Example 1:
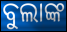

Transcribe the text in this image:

ବୁଲାଙ୍କ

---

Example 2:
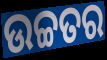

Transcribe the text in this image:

ଉଚ୍ଚତର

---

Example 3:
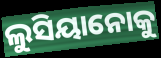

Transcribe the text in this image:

ଲୁସିୟାନୋକୁ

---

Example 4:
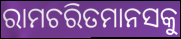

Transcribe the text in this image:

ରାମଚରିତମାନସକୁ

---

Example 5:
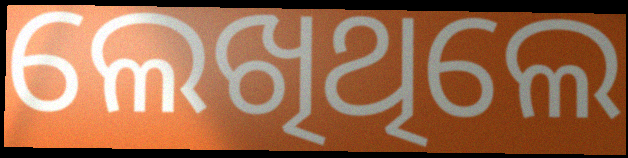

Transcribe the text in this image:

ଲେଖିଥିଲେ